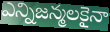
ఎన్నిజన్మలకైనా